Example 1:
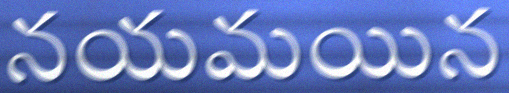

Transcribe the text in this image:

నయమయిన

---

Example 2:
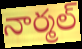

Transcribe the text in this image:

నార్మల్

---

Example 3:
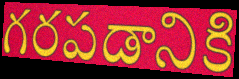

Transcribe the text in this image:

గరపడానికి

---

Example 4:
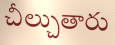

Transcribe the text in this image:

చీల్చుతారు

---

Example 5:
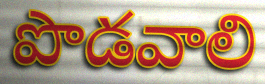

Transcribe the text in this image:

పొడవాలి